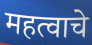
महत्वाचे